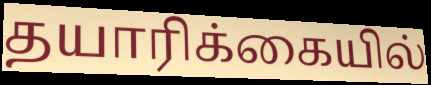
தயாரிக்கையில்